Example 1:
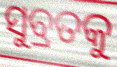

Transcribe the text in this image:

ସୁବ୍ରତକୁ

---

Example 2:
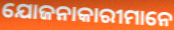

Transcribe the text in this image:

ଯୋଜନାକାରୀମାନେ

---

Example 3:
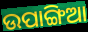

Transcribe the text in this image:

ଉପାଙ୍ଗିଆ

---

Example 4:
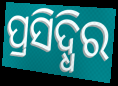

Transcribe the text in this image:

ପ୍ରସିଦ୍ଧିର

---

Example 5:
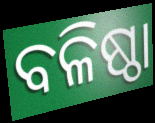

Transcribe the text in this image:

ବଳିଷ୍ଠା